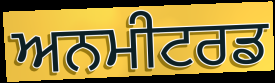
ਅਨਮੀਟਰਡ